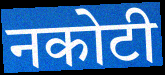
नकोटी